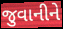
જુવાનીને